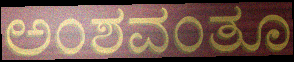
ಅಂಶವಂತೂ